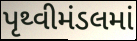
પૃથ્વીમંડલમાં